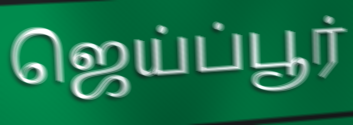
ஜெய்ப்பூர்